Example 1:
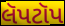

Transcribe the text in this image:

લૅપટૉપ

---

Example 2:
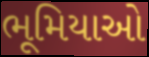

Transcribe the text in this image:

ભૂમિયાઓ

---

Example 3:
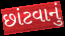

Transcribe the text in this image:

છાંટવાનું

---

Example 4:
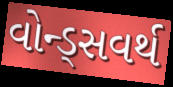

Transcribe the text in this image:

વોન્ડ્સવર્થ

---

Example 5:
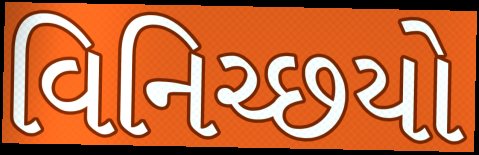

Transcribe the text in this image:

વિનિચ્છયો